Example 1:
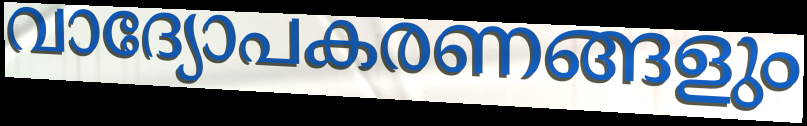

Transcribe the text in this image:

വാദ്യോപകരണങ്ങളും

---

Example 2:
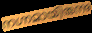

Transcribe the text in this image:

നഗ്നമായിരുന്നു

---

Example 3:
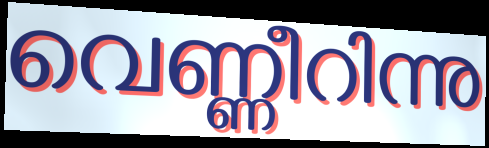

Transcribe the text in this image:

വെണ്ണീറിന്നു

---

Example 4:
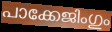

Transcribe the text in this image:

പാക്കേജിംഗും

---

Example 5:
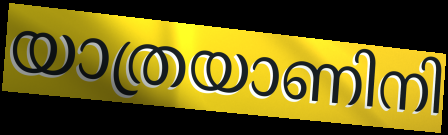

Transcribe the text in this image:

യാത്രയാണിനി